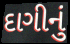
દાગીનું